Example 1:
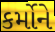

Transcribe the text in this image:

કર્મોને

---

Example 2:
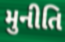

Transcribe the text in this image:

મુનીતિ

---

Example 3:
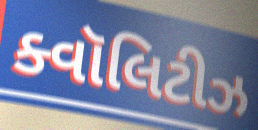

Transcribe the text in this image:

ક્વૉલિટીઝ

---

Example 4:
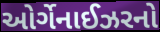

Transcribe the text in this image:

ઓર્ગેનાઈઝરનો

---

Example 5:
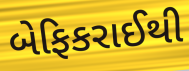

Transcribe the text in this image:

બેફિકરાઈથી